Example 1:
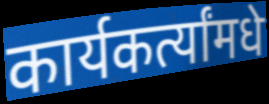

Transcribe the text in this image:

कार्यकर्त्यांमधे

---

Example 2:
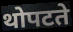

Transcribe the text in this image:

थोपटते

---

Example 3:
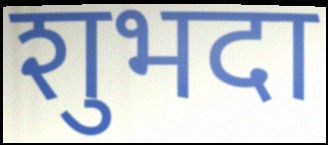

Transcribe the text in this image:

शुभदा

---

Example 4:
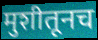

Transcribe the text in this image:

मुशीतूनच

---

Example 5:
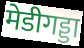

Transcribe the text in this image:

मेडीगड्डा